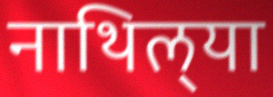
नाथिल्या